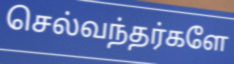
செல்வந்தர்களே